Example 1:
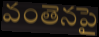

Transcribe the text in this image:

వంతెనపై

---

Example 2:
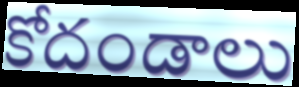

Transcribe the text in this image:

కోదండాలు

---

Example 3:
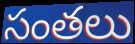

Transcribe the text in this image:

సంతలు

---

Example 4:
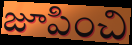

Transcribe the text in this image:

జూపించి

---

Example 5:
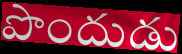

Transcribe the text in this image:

పొందుడు